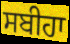
ਸਬੀਹਾ